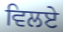
ਵਿਲਏ